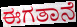
ಈಗತಾನೆ